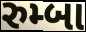
રુમ્બા